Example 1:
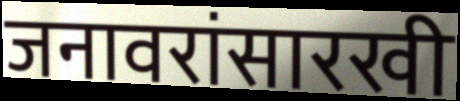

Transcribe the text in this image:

जनावरांसारखी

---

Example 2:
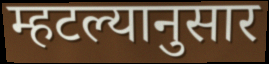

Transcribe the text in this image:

म्हटल्यानुसार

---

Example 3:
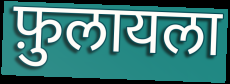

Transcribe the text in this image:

फ़ुलायला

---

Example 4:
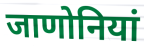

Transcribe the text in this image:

जाणोनियां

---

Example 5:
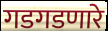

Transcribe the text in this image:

गडगडणारे